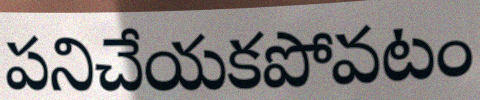
పనిచేయకపోవటం